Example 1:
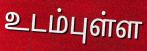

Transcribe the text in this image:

உடம்புள்ள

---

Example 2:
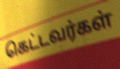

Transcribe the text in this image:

கெட்டவர்கள்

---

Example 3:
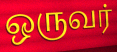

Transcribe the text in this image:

ஒருவர்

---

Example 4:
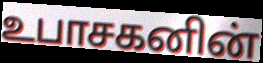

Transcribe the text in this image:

உபாசகனின்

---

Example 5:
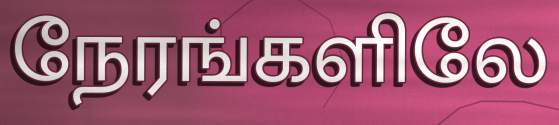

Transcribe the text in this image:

நேரங்களிலே